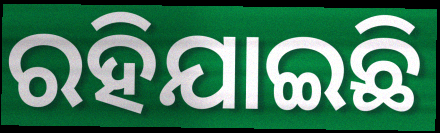
ରହିଯାଇଛି